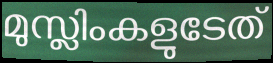
മുസ്ലിംകളുടേത്